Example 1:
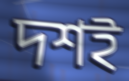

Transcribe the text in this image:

দশই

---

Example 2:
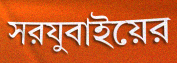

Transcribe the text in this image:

সরযুবাইয়ের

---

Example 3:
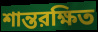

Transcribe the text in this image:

শান্তরক্ষিত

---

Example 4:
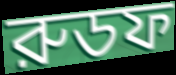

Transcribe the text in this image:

রুডফ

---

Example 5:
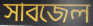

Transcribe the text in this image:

সাবজেল